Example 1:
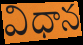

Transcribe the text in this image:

విధాన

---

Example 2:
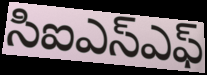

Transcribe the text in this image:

సిఐఎస్ఎఫ్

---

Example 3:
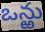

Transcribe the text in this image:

ఒన్ఱు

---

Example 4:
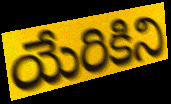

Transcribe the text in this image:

యేరికిని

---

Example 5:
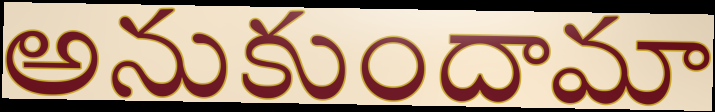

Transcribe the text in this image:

అనుకుందామా